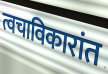
त्वचाविकारांत